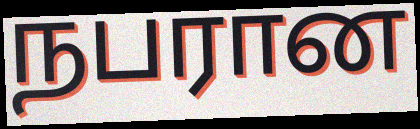
நபரான